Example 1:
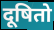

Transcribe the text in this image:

दूषितो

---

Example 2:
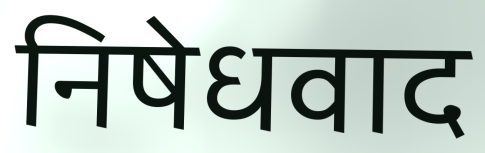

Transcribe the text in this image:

निषेधवाद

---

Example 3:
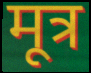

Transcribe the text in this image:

मूत्र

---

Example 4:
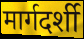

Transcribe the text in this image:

मार्गदर्शी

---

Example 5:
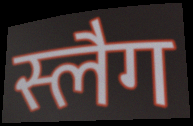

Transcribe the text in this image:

स्लैग